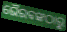
ଭୈରବଙ୍କଠାରୁ